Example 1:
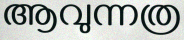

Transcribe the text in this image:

ആവുന്നത്ര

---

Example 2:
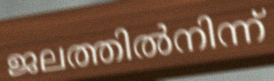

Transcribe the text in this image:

ജലത്തിൽനിന്ന്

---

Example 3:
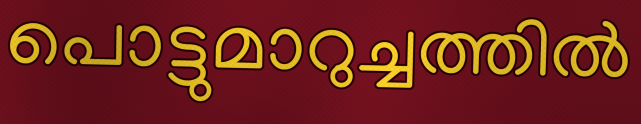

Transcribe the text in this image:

പൊട്ടുമാറുച്ചത്തിൽ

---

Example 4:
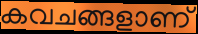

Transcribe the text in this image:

കവചങ്ങളാണ്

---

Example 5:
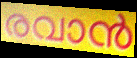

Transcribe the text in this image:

രവാൻ